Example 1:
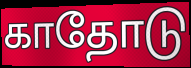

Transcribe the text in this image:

காதோடு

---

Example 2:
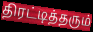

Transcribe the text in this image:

திரட்டித்தரும்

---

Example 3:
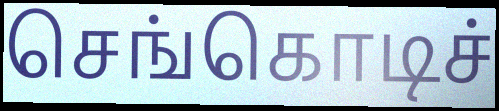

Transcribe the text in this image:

செங்கொடிச்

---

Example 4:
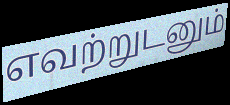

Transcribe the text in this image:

எவற்றுடனும்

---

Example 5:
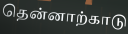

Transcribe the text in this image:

தென்னாற்காடு